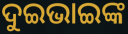
ଦୁଇଭାଇଙ୍କ